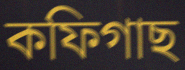
কফিগাছ